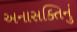
અનાસક્તિનું